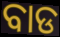
ବାଡ